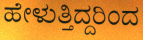
ಹೇಳುತ್ತಿದ್ದರಿಂದ